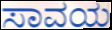
ಸಾವಯ